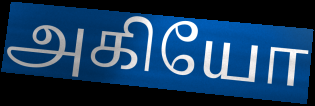
அகியோ